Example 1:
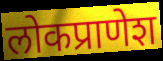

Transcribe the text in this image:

लोकप्राणेश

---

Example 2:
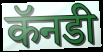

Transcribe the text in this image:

कॅनडी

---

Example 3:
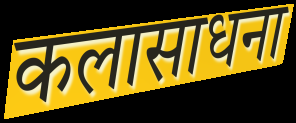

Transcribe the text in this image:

कलासाधना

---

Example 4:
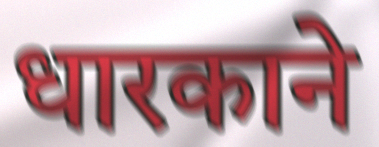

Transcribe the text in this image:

धारकाने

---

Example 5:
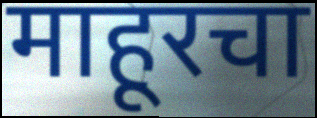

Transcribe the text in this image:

माहूरचा